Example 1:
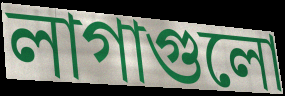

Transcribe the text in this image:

লাগাগুলো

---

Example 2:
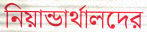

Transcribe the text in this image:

নিয়ান্ডার্থালদের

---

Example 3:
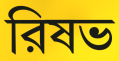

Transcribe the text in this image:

রিষভ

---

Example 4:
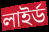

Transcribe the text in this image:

লাইর্ড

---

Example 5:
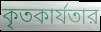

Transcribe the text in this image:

কৃতকার্যতার